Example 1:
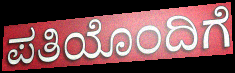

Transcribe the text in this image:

ಪತಿಯೊಂದಿಗೆ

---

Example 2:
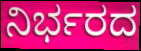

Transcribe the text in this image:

ನಿರ್ಭರದ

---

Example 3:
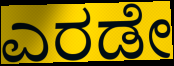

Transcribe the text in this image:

ಎರಡೇ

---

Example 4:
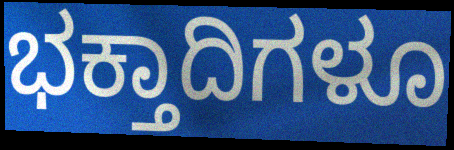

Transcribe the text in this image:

ಭಕ್ತಾದಿಗಳೂ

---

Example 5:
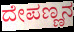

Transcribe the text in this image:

ದೇಪಣ್ಣನ